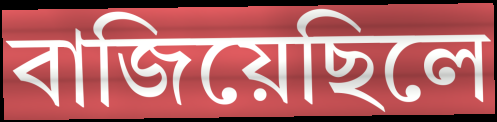
বাজিয়েছিলে